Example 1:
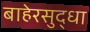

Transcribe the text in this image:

बाहेरसुद्धा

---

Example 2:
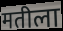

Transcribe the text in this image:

मतीला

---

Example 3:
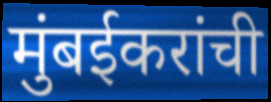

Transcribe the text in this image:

मुंबईकरांची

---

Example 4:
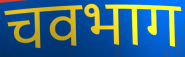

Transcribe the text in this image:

चवभाग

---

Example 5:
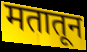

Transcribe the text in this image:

मतातून